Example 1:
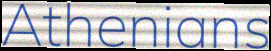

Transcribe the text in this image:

Athenians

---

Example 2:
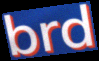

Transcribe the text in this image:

brd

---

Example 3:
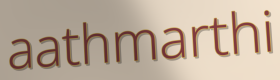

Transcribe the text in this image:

aathmarthi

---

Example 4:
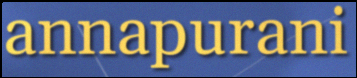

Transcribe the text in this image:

annapurani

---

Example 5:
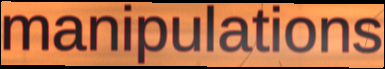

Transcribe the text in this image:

manipulations